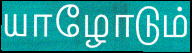
யாழோடும்